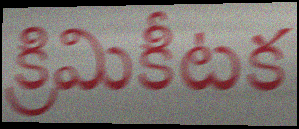
క్రిమికీటక